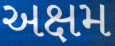
અક્ષમ